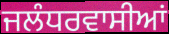
ਜਲੰਧਰਵਾਸੀਆਂ